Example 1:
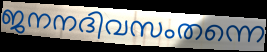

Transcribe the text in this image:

ജനനദിവസംതന്നെ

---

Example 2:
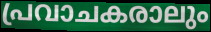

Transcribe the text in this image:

പ്രവാചകരാലും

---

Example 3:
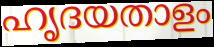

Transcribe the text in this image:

ഹൃദയതാളം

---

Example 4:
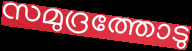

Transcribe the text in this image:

സമുദ്രത്തോടു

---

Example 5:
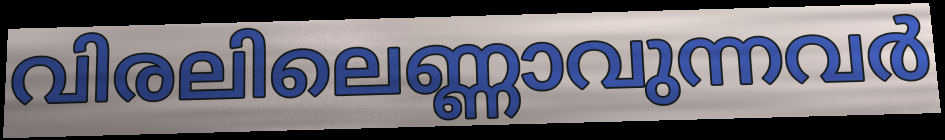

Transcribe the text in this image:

വിരലിലെണ്ണാവുന്നവർ